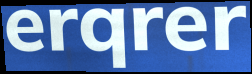
erqrer